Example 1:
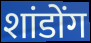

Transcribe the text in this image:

शांडोंग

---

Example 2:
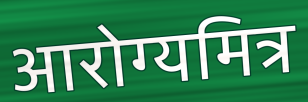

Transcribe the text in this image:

आरोग्यमित्र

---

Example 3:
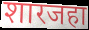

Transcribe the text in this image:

शारजहा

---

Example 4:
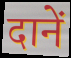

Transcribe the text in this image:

दानें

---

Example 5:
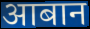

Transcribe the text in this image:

आबान